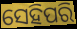
ସେହିପରି